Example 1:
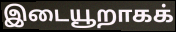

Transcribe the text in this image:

இடையூறாகக்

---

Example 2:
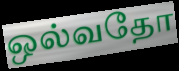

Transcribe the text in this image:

ஒல்வதோ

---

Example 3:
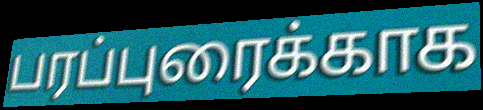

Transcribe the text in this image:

பரப்புரைக்காக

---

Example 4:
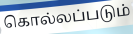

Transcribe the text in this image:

கொல்லப்படும்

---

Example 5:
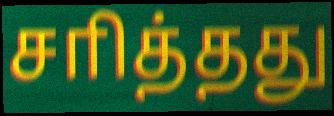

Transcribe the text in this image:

சரித்தது